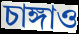
চাঙ্গাও